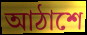
আঠাশে